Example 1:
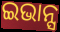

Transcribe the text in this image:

ଇଭାନ୍ସ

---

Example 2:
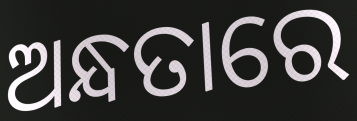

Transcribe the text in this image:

ଅନ୍ଧତାରେ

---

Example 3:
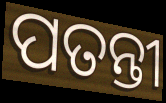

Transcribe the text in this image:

ପତନ୍ତୀ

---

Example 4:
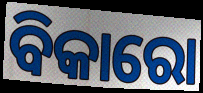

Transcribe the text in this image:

ବିକାରୋ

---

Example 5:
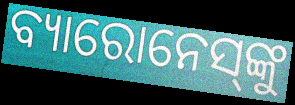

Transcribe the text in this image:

ବ୍ୟାରୋନେସ୍‌ଙ୍କୁ